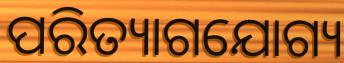
ପରିତ୍ୟାଗଯୋଗ୍ୟ